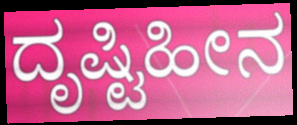
ದೃಷ್ಟಿಹೀನ